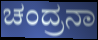
ಚಂದ್ರನಾ